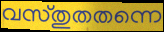
വസ്തുതതന്നെ